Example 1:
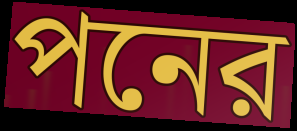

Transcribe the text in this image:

পনের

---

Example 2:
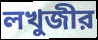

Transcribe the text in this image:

লখুজীর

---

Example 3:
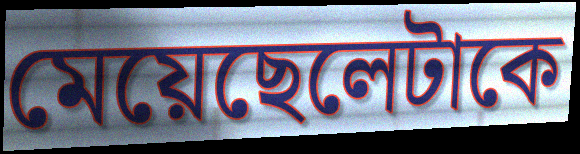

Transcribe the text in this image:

মেয়েছেলেটাকে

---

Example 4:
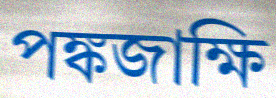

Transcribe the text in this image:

পঙ্কজাক্ষি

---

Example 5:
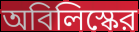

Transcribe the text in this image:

অবিলিস্কের